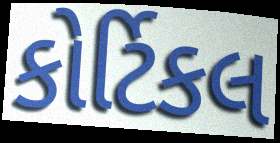
કોર્ટિકલ